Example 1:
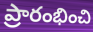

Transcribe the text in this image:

ప్రారంభించి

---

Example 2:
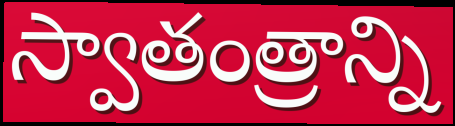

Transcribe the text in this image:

స్వాతంత్రాన్ని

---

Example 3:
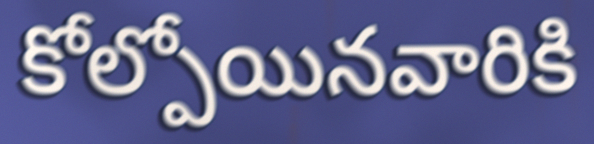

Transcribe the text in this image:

కోల్పోయినవారికి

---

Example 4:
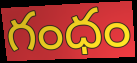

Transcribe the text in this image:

గంధం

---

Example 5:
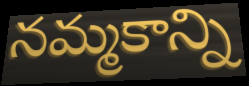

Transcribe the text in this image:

నమ్మకాన్ని